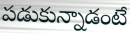
పడుకున్నాడంటే